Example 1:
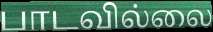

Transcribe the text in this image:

பாடவில்லை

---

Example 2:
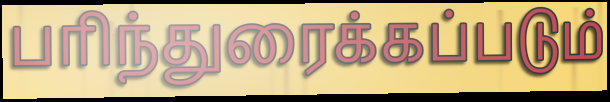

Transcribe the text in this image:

பரிந்துரைக்கப்படும்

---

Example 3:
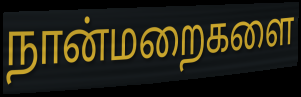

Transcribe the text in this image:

நான்மறைகளை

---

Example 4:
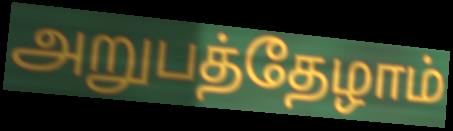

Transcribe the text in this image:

அறுபத்தேழாம்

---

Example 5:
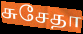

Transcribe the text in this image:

சுசேதா